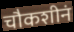
चौकशीनं